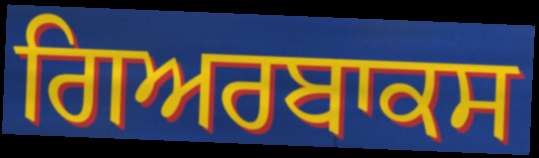
ਗਿਅਰਬਾਕਸ